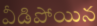
వీడిపోయిన